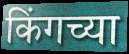
किंगच्या